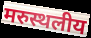
मरुस्थलीय